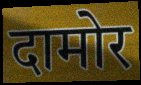
दामोर